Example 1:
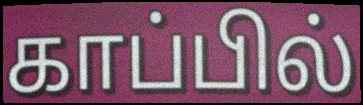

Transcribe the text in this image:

காப்பில்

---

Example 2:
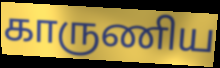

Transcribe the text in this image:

காருணிய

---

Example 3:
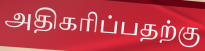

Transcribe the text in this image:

அதிகரிப்பதற்கு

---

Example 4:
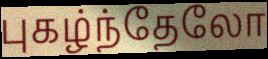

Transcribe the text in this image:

புகழ்ந்தேலோ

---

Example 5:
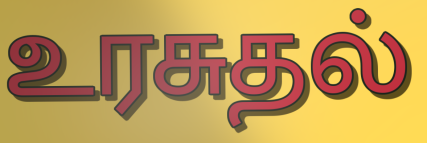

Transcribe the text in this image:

உரசுதல்